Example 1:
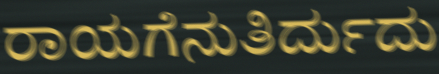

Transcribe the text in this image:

ರಾಯಗೆನುತಿರ್ದುದು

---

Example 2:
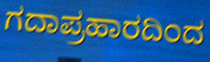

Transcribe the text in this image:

ಗದಾಪ್ರಹಾರದಿಂದ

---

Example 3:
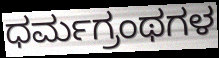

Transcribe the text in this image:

ಧರ್ಮಗ್ರಂಥಗಳ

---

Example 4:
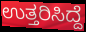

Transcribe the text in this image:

ಉತ್ತರಿಸಿದ್ದೆ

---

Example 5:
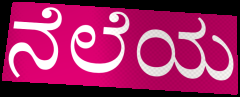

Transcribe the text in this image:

ನೆಲೆಯ